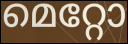
മെറ്റോ